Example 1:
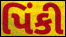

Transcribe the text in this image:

પિંકી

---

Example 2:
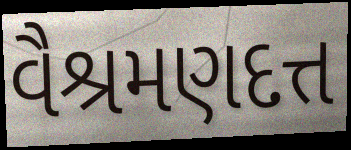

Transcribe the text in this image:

વૈશ્રમણદત્ત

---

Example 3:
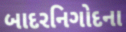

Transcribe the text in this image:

બાદરનિગોદના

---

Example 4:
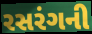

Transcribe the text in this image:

રસરંગની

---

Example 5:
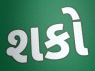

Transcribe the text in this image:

શકો